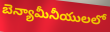
బెన్యామీనీయులలో